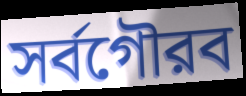
সর্বগৌরব